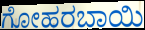
ಗೋಹರಬಾಯಿ